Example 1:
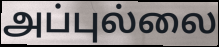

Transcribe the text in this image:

அப்புல்லை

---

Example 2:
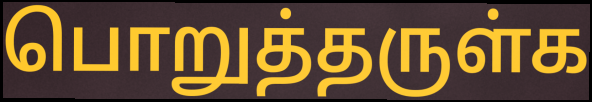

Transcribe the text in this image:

பொறுத்தருள்க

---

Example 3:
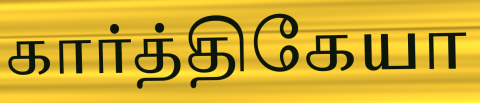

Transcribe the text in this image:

கார்த்திகேயா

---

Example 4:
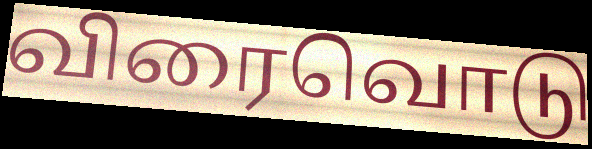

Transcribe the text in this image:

விரைவொடு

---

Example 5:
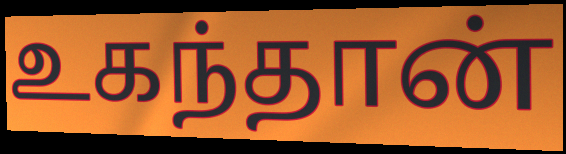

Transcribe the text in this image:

உகந்தான்